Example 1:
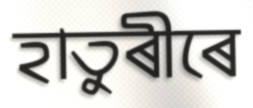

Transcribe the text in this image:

হাতুৰীৰে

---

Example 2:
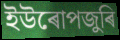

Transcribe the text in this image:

ইউৰোপজুৰি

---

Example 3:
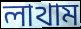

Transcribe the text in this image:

লাথাম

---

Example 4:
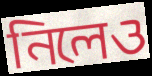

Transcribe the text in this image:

নিলেও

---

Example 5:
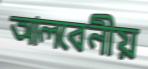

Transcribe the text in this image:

আলবেনীয়